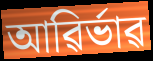
আৱিৰ্ভাৱ